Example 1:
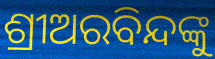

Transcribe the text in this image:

ଶ୍ରୀଅରବିନ୍ଦଙ୍କୁ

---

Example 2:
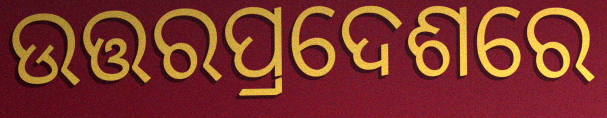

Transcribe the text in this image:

ଉତ୍ତରପ୍ରଦେଶରେ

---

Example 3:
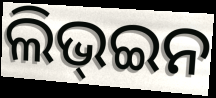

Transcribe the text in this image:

ଲିଭ୍ଇନ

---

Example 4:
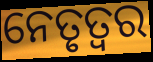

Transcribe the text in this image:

ନେତୃତ୍ଵର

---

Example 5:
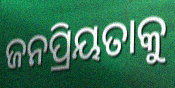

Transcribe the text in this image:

ଜନପ୍ରିୟତାକୁ